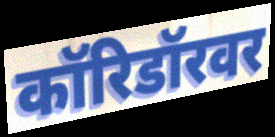
कॉरिडॉरवर